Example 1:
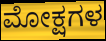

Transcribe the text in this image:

ಮೋಕ್ಷಗಳ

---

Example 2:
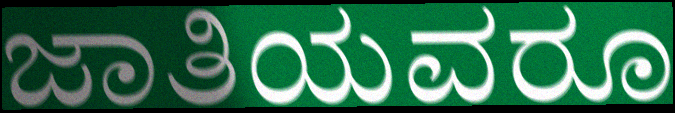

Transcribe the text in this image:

ಜಾತಿಯವರೂ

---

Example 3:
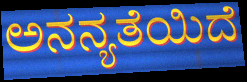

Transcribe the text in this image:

ಅನನ್ಯತೆಯಿದೆ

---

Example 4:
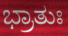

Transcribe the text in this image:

ಭ್ರಾತುಃ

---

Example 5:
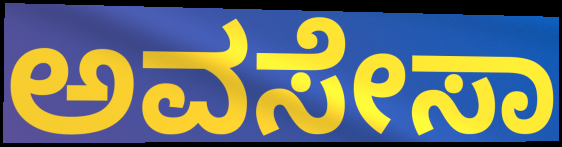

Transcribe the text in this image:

ಅವಸೇಸಾ